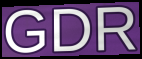
GDR